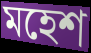
মহেশ